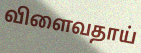
விளைவதாய்